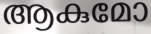
ആകുമോ